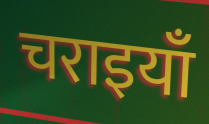
चराइयाँ